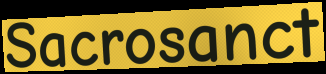
Sacrosanct